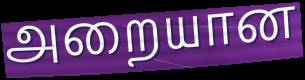
அறையான